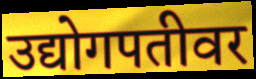
उद्योगपतीवर